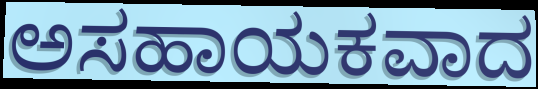
ಅಸಹಾಯಕವಾದ